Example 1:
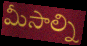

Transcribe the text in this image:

మీసాల్ని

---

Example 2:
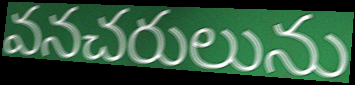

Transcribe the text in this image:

వనచరులును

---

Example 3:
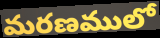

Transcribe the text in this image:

మరణములో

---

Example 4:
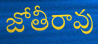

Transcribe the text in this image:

జోతీరావు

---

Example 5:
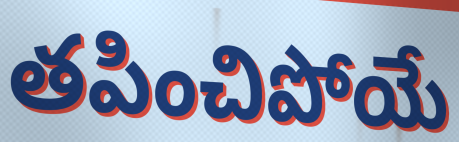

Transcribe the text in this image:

తపించిపోయే